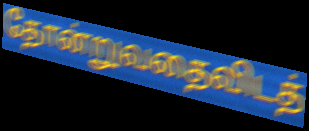
தோன்றுவதைவிடத்